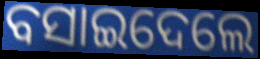
ବସାଇଦେଲେ